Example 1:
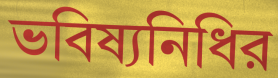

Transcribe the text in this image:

ভবিষ্যনিধির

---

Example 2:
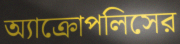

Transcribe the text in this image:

অ্যাক্রোপলিসের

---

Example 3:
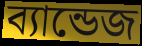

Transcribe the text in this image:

ব্যান্ডেজ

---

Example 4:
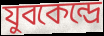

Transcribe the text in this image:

যুবকেন্দ্রে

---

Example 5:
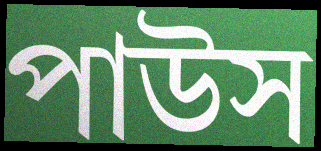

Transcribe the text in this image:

পাউস